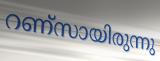
റണ്സായിരുന്നു